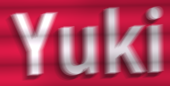
Yuki